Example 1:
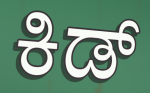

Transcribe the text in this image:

ಕಿಡ್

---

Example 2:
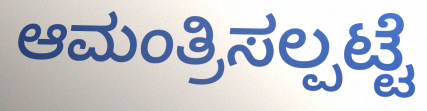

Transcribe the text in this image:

ಆಮಂತ್ರಿಸಲ್ಪಟ್ಟೆ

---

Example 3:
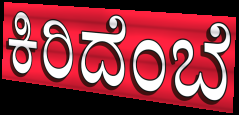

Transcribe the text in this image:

ಕಿರಿದೆಂಬೆ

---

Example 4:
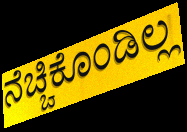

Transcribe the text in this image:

ನೆಚ್ಚಿಕೊಂಡಿಲ್ಲ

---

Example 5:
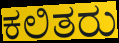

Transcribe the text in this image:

ಕಲಿತರು